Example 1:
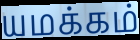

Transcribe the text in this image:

யமக்கம்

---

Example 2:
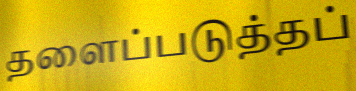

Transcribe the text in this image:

தளைப்படுத்தப்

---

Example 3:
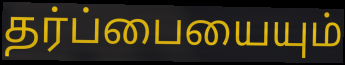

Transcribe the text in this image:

தர்ப்பையையும்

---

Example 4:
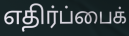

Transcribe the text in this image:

எதிர்ப்பைக்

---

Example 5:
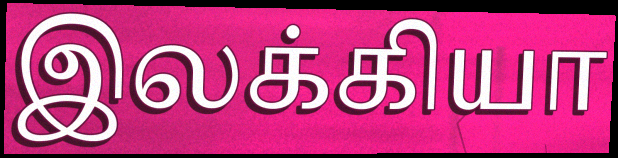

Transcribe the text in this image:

இலக்கியா